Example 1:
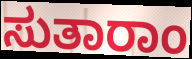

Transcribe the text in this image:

ಸುತಾರಾಂ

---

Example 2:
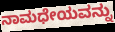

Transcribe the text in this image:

ನಾಮಧೇಯವನ್ನು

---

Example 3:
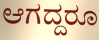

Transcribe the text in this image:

ಆಗದ್ದರೂ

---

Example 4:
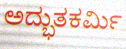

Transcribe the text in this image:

ಅದ್ಭುತಕರ್ಮಿ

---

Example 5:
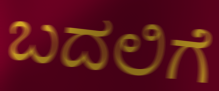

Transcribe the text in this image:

ಬದಲಿಗೆ